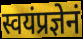
स्वयंप्रज्ञेनं